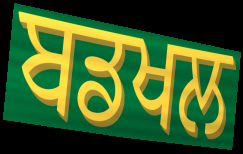
ਬਡਖਲ